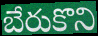
బేరుకొని